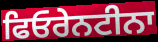
ਫਿਓਰੇਨਟੀਨਾ